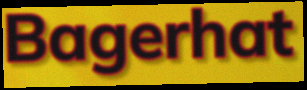
Bagerhat